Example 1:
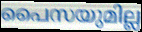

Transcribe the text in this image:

പൈസയുമില്ല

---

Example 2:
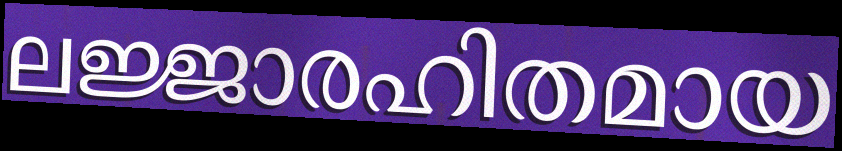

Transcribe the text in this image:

ലജ്ജാരഹിതമായ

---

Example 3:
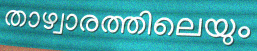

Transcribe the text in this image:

താഴ്വാരത്തിലെയും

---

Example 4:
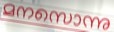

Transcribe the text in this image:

മനസൊന്നു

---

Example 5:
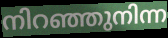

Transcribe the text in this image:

നിറഞ്ഞുനിന്ന